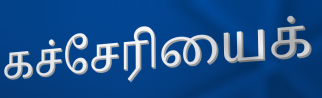
கச்சேரியைக்